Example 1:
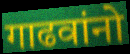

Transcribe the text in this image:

गाढवांनो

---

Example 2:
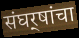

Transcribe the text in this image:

संघर्षांचा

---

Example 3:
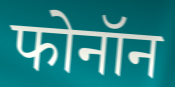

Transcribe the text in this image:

फोनॉन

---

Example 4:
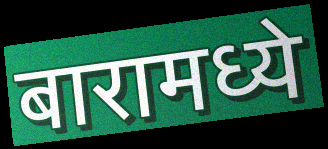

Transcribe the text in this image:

बारामध्ये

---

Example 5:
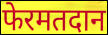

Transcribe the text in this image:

फेरमतदान